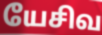
யேசிவ